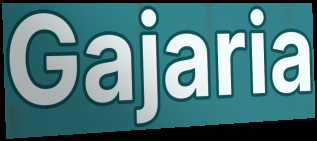
Gajaria